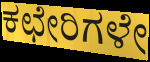
ಕಛೇರಿಗಳೇ